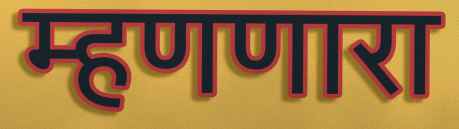
म्हणणारा